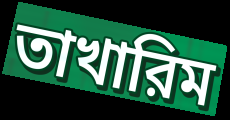
তাখারিম